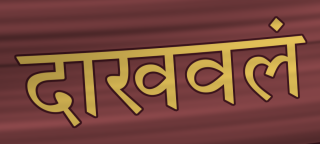
दाखवलं